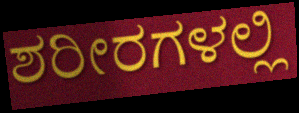
ಶರೀರಗಳಲ್ಲಿ